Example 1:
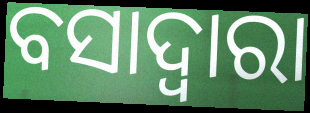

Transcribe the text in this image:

ବସାଦ୍ୱାରା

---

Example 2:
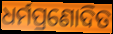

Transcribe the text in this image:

ଧର୍ମପ୍ରଣୋଦିତ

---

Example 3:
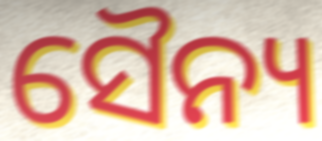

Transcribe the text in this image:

ସୈନ୍ୟ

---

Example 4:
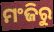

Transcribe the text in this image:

ମଂଜିରୁ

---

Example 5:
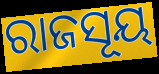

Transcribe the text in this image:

ରାଜସୂୟ